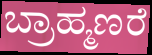
ಬ್ರಾಹ್ಮಣರೆ